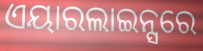
ଏୟାରଲାଇନ୍ସରେ